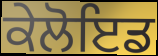
ਕੇਲੋਇਡ